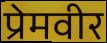
प्रेमवीर